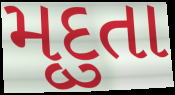
મૃદુતા